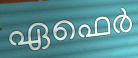
ഏഫെർ